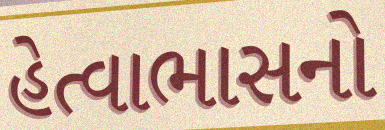
હેત્વાભાસનો